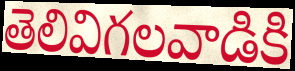
తెలివిగలవాడికి